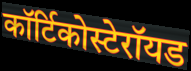
कॉर्टिकोस्टेरॉयड